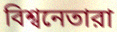
বিশ্বনেতারা